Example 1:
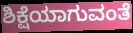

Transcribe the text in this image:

ಶಿಕ್ಷೆಯಾಗುವಂತೆ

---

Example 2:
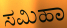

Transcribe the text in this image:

ಸಮಿಹಾ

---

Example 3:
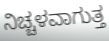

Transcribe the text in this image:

ನಿಚ್ಚಳವಾಗುತ್ತ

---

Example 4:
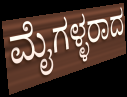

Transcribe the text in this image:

ಮೈಗಳ್ಳರಾದ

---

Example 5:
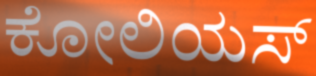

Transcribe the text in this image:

ಕೋಲಿಯಸ್